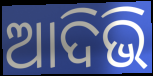
ଆଦିଭି